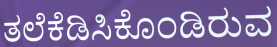
ತಲೆಕೆಡಿಸಿಕೊಂಡಿರುವ